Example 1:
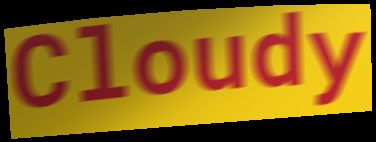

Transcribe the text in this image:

Cloudy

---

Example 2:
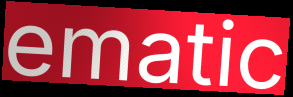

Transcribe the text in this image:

ematic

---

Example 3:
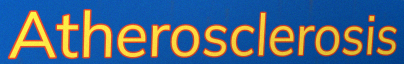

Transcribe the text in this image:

Atherosclerosis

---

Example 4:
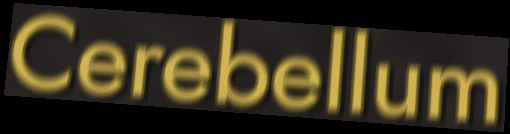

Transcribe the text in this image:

Cerebellum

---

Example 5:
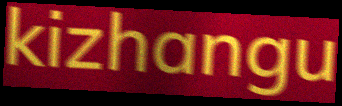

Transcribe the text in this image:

kizhangu